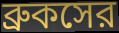
ব্রুকসের